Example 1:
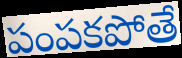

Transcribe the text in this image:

పంపకపోతే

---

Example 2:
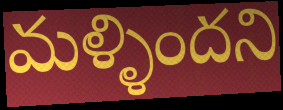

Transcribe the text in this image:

మళ్ళిందని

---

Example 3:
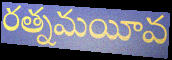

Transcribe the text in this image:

రత్నమయీవ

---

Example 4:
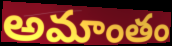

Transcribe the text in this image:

అమాంతం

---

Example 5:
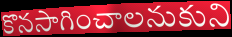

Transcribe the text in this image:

కొనసాగించాలనుకుని